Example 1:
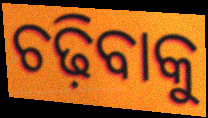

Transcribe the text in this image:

ଚଢ଼ିବାକୁ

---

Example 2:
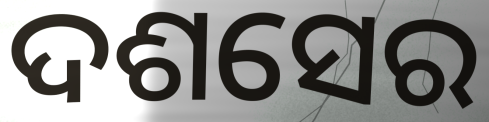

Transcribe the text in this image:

ଦଶସେର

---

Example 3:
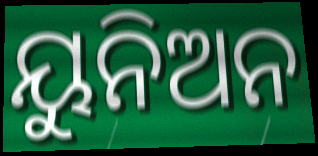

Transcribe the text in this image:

ୟୁନିଅନ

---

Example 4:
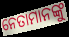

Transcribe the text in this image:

ନେତାମାନଙ୍କୁ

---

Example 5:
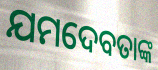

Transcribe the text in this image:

ଯମଦେବତାଙ୍କ